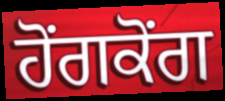
ਹੋਂਗਕੋਂਗ